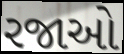
રજાઓ